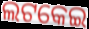
ଲଟକେଇ